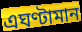
এঘণ্টামান